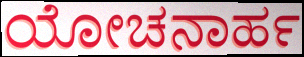
ಯೋಚನಾರ್ಹ